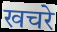
खचरे